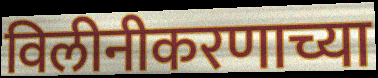
विलीनीकरणाच्या